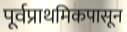
पूर्वप्राथमिकपासून